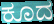
ಕೂದ